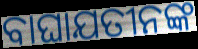
ବାଘାଯତୀନଙ୍କ